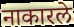
नाकारले